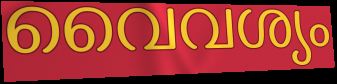
വൈവശ്യം